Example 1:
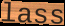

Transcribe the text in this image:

lass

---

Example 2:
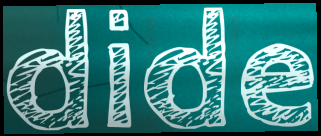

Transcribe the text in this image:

dide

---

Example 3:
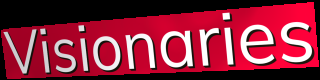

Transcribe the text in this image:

Visionaries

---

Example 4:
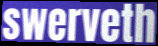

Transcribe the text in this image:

swerveth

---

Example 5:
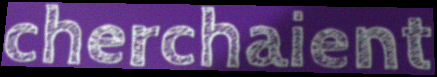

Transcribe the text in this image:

cherchaient